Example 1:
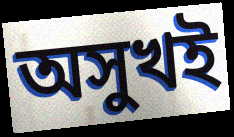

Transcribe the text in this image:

অসুখই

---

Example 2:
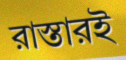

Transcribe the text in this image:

রাস্তারই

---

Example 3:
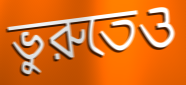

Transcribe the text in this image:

ভুরুতেও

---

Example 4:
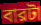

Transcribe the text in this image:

বারটা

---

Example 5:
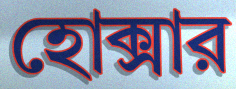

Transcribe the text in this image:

হোক্সার